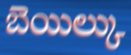
బెయిల్కు